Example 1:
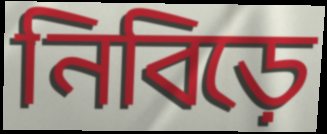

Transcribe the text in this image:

নিবিড়ে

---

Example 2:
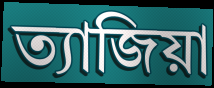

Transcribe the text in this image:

ত্যাজিয়া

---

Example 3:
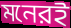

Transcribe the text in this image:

মনেরই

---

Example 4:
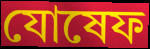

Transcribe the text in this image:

যোষেফ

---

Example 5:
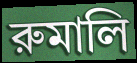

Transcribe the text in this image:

রুমালি